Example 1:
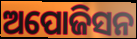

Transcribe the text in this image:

ଅପୋଜିସନ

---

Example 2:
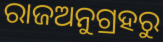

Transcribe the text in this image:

ରାଜଅନୁଗ୍ରହରୁ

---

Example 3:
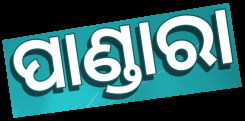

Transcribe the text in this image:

ପାଣ୍ଡାରା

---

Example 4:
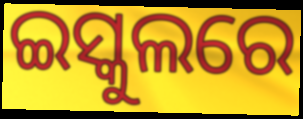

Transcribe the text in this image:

ଇସ୍କୁଲରେ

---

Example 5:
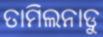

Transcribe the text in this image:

ତାମିଲନାଡୁ